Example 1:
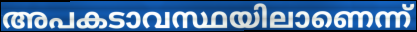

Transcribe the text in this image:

അപകടാവസ്ഥയിലാണെന്ന്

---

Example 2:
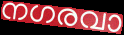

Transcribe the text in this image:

നഗരവാ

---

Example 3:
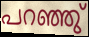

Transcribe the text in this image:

പറഞ്ഞു്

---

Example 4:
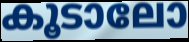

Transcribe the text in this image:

കൂടാലോ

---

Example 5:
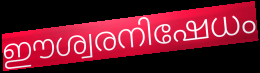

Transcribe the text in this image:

ഈശ്വരനിഷേധം